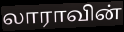
லாராவின்